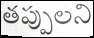
తప్పులని